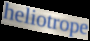
heliotrope